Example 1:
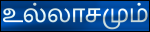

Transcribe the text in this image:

உல்லாசமும்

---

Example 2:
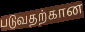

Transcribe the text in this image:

படுவதற்கான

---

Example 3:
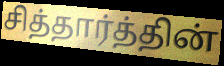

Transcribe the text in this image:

சித்தார்த்தின்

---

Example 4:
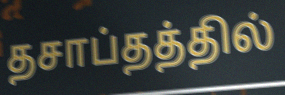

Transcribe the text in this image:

தசாப்தத்தில்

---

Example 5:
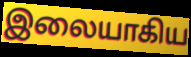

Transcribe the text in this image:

இலையாகிய